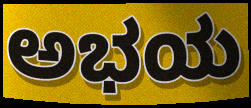
ಅಭಯ